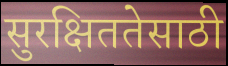
सुरक्षिततेसाठी